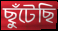
ছুঁটেছি